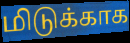
மிடுக்காக